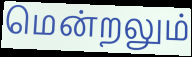
மென்றலும்